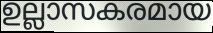
ഉല്ലാസകരമായ